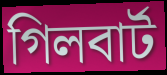
গিলবাৰ্ট